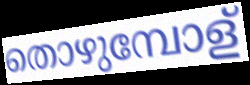
തൊഴുമ്പോള്